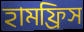
হামফ্রিস